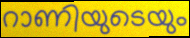
റാണിയുടെയും